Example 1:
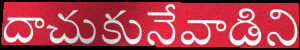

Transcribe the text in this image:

దాచుకునేవాడిని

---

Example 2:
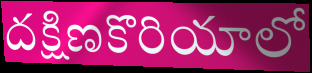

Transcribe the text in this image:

దక్షిణకొరియాలో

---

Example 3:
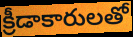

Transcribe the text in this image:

క్రీడాకారులతో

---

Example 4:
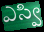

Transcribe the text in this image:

ఎస్వి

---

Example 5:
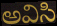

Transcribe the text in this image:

అవిసి